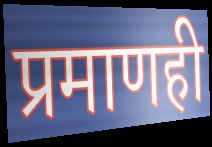
प्रमाणही